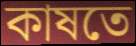
কাষতে